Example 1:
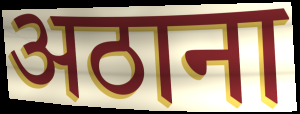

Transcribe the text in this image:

अठाना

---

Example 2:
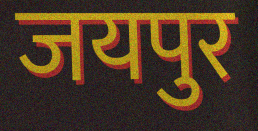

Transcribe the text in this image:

जयपुर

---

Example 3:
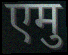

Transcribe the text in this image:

एमु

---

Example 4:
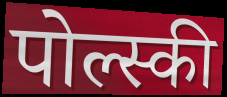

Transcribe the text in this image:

पोल्स्की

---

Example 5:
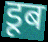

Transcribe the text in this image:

डूब